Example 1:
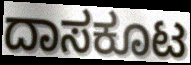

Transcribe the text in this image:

ದಾಸಕೂಟ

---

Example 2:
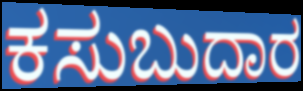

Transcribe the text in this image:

ಕಸುಬುದಾರ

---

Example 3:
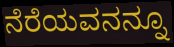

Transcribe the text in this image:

ನೆರೆಯವನನ್ನೂ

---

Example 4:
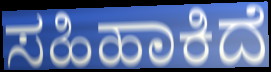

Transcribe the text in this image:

ಸಹಿಹಾಕಿದೆ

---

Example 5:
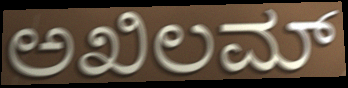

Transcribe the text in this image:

ಅಖಿಲಮ್